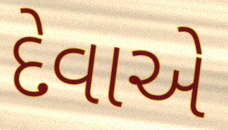
દેવાએ